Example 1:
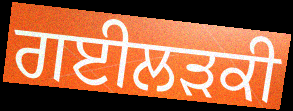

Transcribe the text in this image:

ਗਈਲੜਕੀ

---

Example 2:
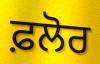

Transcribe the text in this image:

ਫ਼ਲੋਰ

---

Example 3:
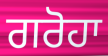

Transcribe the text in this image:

ਗਰੋਹਾ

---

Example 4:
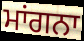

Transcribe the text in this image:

ਮਾਂਗਨਾ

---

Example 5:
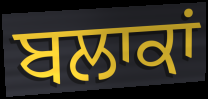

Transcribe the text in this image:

ਬਲਾਕਾਂ